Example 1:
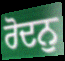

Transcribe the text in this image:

ਰੋਦਨੁ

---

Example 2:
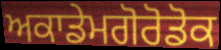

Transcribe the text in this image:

ਅਕਾਡੇਮਗੋਰੋਡੋਕ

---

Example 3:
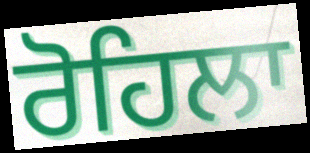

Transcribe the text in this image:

ਰੋਹਿਲਾ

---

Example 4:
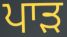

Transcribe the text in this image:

ਪਾੜ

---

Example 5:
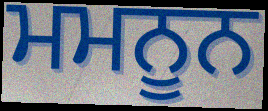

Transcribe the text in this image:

ਮਮਨੂਨ